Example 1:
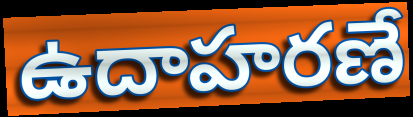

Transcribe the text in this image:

ఉదాహరణే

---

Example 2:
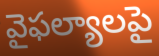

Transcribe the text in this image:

వైఫల్యాలపై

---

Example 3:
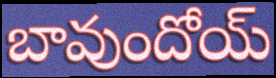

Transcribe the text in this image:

బావుందోయ్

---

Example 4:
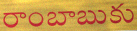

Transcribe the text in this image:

రాంబాబుకు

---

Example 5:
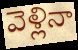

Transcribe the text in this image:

వెళ్లినా